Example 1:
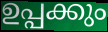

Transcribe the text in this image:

ഉപ്പക്കും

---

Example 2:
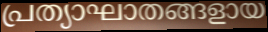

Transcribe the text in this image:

പ്രത്യാഘാതങ്ങളായ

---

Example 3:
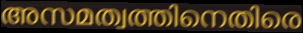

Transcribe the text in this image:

അസമത്വത്തിനെതിരെ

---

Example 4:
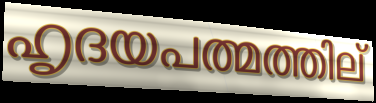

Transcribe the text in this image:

ഹൃദയപത്മത്തില്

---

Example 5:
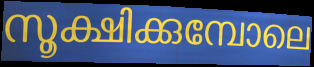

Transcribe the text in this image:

സൂക്ഷിക്കുമ്പോലെ